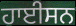
ਹਾਈਸਨ